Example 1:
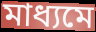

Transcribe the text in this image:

মাধ্যমে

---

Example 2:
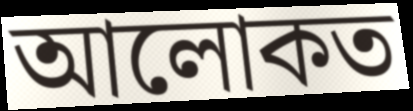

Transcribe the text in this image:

আলোকত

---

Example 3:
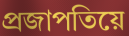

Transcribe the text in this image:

প্ৰজাপতিয়ে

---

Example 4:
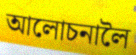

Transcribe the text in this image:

আলোচনালৈ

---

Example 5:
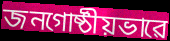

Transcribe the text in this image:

জনগোষ্ঠীয়ভাৱে